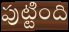
పుట్టింది